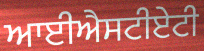
ਆਈਐਸਟੀਏਟੀ